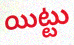
యిట్టు